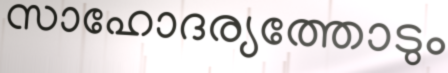
സാഹോദര്യത്തോടും